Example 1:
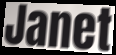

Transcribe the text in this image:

Janet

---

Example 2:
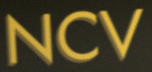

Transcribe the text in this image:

NCV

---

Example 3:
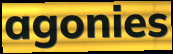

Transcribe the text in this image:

agonies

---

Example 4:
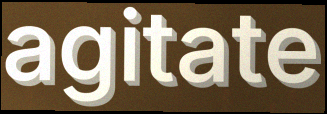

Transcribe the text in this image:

agitate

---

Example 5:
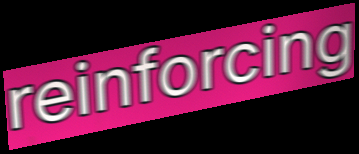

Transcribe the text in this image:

reinforcing